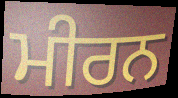
ਮੀਰਨ